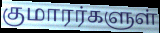
குமாரர்களுள்